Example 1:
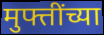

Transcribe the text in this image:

मुफ्तींच्या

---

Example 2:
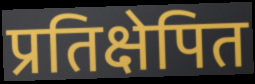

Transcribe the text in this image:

प्रतिक्षेपित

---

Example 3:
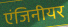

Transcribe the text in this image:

एंजिनीयर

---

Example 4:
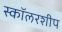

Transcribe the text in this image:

स्कॉलरशीप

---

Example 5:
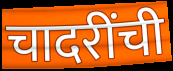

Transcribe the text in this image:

चादरींची